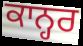
ਕਾਨ੍ਹਰ